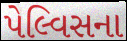
પેલ્વિસના